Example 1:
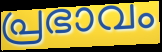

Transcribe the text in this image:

പ്രഭാവം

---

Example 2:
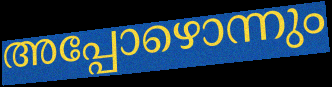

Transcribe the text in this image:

അപ്പോഴൊന്നും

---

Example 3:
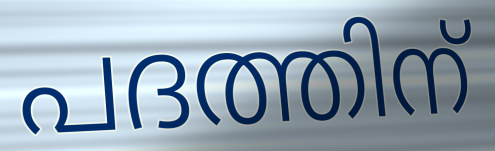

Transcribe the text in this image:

പദത്തിന്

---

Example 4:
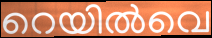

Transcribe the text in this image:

റെയിൽവെ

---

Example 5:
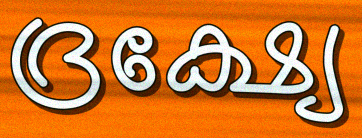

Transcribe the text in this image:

ദ്രക്ഷ്യേ